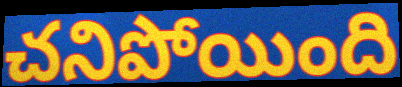
చనిపోయింది